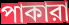
পাকারা